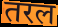
तरल